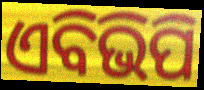
ଏବିଭିପି